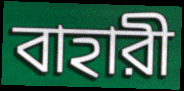
বাহারী